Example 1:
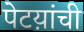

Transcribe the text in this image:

पेटय़ांची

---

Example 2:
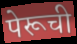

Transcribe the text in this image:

पेरूची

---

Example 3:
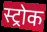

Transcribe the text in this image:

स्ट्रोक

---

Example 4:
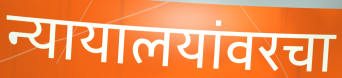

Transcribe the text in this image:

न्यायालयांवरचा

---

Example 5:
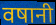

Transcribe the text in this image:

वषानी